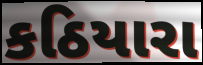
કઠિયારા